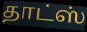
தாட்ஸ்